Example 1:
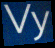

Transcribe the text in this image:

Vy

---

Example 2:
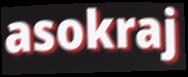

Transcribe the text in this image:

asokraj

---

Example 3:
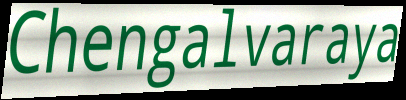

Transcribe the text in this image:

Chengalvaraya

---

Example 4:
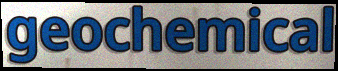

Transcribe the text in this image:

geochemical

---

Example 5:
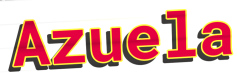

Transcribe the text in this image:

Azuela